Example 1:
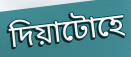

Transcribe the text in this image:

দিয়াটোহে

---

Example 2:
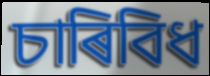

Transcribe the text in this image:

চাৰিবিধ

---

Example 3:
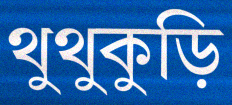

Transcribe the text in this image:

থুথুকুড়ি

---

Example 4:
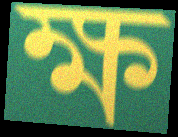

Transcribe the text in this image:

ক্ষ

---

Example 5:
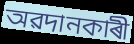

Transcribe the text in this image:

অৱদানকাৰী